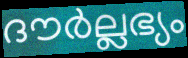
ദൗർല്ലഭ്യം